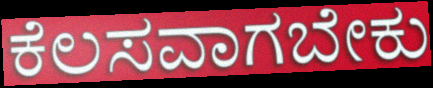
ಕೆಲಸವಾಗಬೇಕು